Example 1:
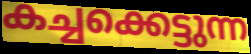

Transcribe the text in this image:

കച്ചക്കെട്ടുന്ന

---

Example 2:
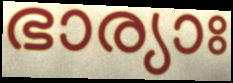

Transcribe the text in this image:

ഭാര്യാഃ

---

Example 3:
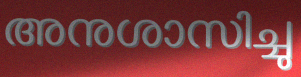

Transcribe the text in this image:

അനുശാസിച്ചു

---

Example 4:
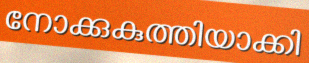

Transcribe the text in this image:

നോക്കുകുത്തിയാക്കി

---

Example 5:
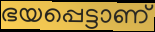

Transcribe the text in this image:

ഭയപ്പെട്ടാണ്